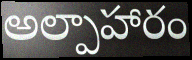
అల్పాహారం